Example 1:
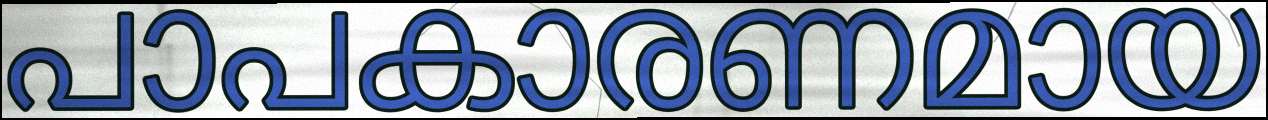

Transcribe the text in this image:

പാപകാരണമായ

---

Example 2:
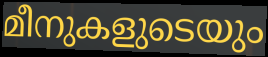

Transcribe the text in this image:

മീനുകളുടെയും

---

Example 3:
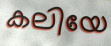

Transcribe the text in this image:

കലിയേ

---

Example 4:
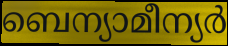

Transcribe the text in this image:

ബെന്യാമീന്യർ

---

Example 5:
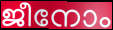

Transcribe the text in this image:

ജീനോം